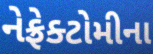
નેફ્રેક્ટોમીના